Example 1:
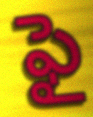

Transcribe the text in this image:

ఫై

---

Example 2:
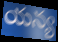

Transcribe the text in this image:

యన్య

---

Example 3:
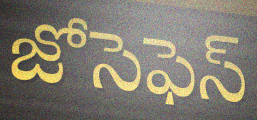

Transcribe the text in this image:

జోసెఫెస్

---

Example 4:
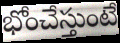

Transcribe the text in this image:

భోంచేస్తుంటే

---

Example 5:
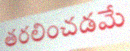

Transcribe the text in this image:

తరలించడమే